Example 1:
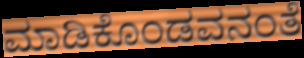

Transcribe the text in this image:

ಮಾಡಿಕೊಂಡವನಂತೆ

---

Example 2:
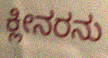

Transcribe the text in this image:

ಕ್ಲೀನರನು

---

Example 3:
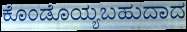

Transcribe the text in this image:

ಕೊಂಡೊಯ್ಯಬಹುದಾದ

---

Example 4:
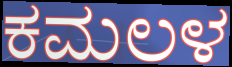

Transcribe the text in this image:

ಕಮಲಳ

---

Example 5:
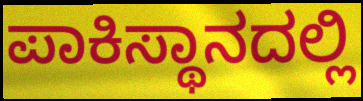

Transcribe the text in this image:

ಪಾಕಿಸ್ಥಾನದಲ್ಲಿ